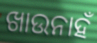
ଖାଉନାହଁ